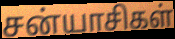
சன்யாசிகள்